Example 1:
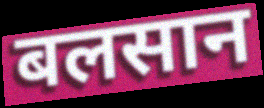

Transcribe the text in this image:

बलसान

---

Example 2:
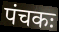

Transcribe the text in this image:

पंचकः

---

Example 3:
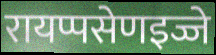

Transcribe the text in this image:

रायप्पसेणइज्जे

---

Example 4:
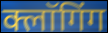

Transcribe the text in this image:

क्लॉगिंग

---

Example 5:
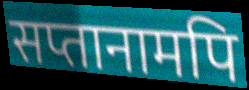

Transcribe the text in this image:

सप्तानामपि